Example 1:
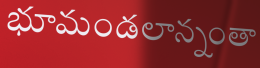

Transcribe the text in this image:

భూమండలాన్నంతా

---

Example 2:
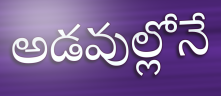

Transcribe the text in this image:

అడవుల్లోనే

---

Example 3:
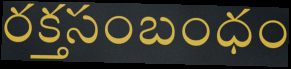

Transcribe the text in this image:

రక్తసంబంధం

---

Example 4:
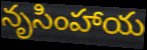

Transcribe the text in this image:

నృసింహాయ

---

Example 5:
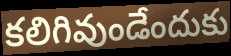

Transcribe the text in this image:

కలిగివుండేందుకు